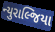
ન્યુરાલ્જિયા